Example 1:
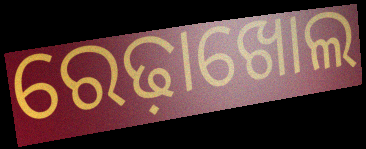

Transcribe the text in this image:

ରେଢ଼ାଖୋଲ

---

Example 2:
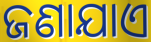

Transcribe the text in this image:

ଜଣାଯାଏ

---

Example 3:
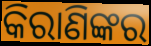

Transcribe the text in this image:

କିରାଣିଙ୍କର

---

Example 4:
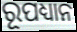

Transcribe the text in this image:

ରୂପଧ୍ୟାନ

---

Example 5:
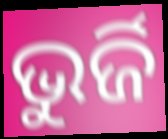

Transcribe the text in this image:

ଭୁର୍ଜି